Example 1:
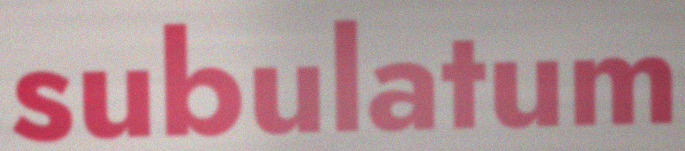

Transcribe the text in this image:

subulatum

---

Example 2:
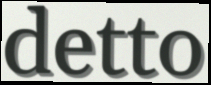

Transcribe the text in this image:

detto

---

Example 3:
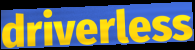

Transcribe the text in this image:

driverless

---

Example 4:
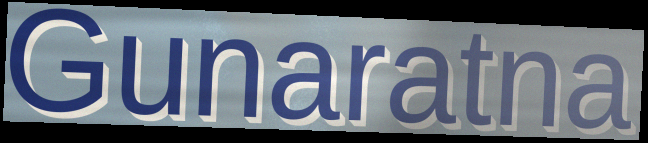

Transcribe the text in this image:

Gunaratna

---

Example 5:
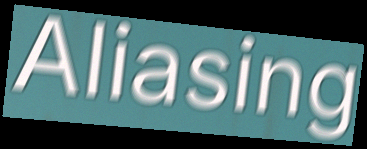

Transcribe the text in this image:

Aliasing